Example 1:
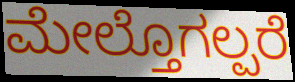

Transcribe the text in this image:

ಮೇಲ್ತೊಗಲ್ಪರೆ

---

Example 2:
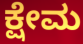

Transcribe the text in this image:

ಕ್ಷೇಮ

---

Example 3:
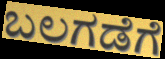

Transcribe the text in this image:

ಬಲಗಡೆಗೆ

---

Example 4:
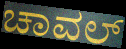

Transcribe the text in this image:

ಚಾವಲ್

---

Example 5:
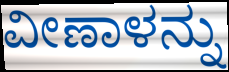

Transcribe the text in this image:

ವೀಣಾಳನ್ನು